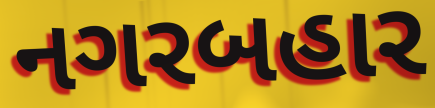
નગરબહાર